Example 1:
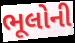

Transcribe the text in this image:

ભૂલોની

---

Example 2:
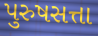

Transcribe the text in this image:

પુરુષસત્તા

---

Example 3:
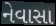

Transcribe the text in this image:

નેવાસા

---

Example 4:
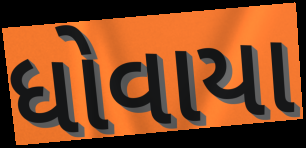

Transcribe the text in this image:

ધોવાયા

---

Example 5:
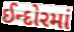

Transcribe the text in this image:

ઈન્દોરમાં